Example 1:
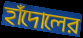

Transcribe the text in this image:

হাঁদোলের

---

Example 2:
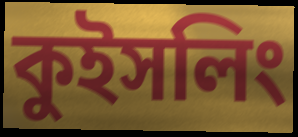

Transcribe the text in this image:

কুইসলিং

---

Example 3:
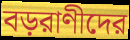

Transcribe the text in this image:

বড়রাণীদের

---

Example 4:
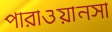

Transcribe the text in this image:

পারাওয়ানসা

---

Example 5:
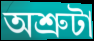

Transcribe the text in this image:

অশ্রুটা